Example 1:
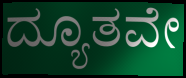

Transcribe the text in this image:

ದ್ಯೂತವೇ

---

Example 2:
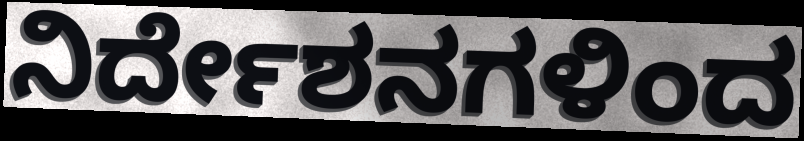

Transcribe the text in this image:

ನಿರ್ದೇಶನಗಳಿಂದ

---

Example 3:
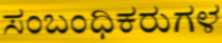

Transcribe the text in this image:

ಸಂಬಂಧಿಕರುಗಳ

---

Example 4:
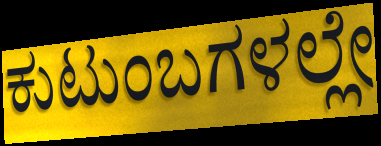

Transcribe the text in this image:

ಕುಟುಂಬಗಳಲ್ಲೇ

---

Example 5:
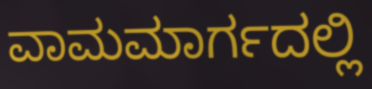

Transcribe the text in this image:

ವಾಮಮಾರ್ಗದಲ್ಲಿ